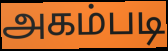
அகம்படி